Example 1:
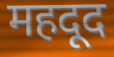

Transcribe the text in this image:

महदूद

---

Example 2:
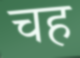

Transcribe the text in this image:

चह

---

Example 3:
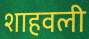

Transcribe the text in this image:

शाहवली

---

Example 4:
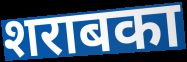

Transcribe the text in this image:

शराबका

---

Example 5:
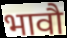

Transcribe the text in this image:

भावौ